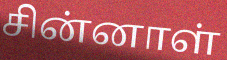
சின்னாள்